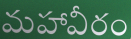
మహావీరం